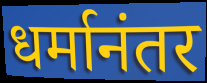
धर्मानंतर